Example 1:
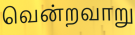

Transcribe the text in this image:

வென்றவாறு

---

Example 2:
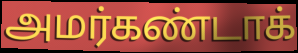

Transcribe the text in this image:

அமர்கண்டாக்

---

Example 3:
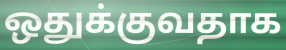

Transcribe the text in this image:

ஒதுக்குவதாக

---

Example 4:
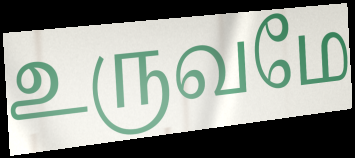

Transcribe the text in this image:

உருவமே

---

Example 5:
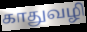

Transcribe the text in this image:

காதுவழி